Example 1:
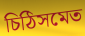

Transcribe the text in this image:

চিঠিসমেত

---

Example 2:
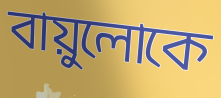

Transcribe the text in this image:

বায়ুলোকে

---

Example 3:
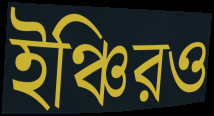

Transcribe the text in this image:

ইঞ্চিরও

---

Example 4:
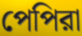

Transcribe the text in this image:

পেপিরা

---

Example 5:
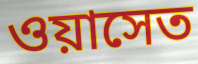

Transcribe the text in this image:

ওয়াসেত